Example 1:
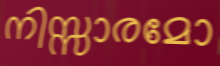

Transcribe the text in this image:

നിസ്സാരമോ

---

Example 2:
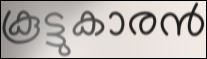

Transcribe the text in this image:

കൂട്ടുകാരൻ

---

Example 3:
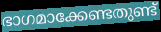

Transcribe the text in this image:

ഭാഗമാക്കേണ്ടതുണ്ട്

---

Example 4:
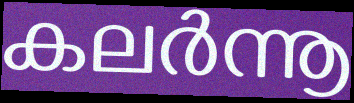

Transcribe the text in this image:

കലർന്നൂ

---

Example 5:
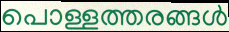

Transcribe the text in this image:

പൊള്ളത്തരങ്ങൾ